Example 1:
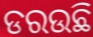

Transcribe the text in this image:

ଡରଉଛି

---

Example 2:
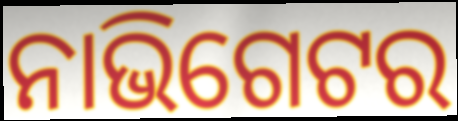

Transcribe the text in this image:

ନାଭିଗେଟର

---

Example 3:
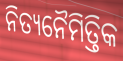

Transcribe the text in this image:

ନିତ୍ୟନୈମିତ୍ତିକ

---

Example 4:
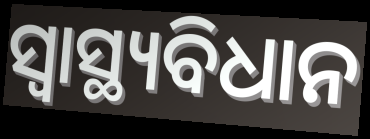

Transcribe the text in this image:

ସ୍ୱାସ୍ଥ୍ୟବିଧାନ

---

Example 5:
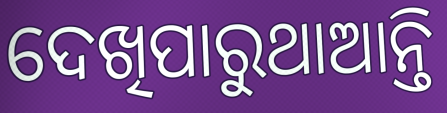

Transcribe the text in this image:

ଦେଖିପାରୁଥାଆନ୍ତି